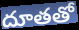
దూతతో